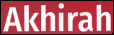
Akhirah